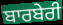
ਬਾਰਬੇਰੀ